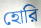
হোরি